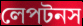
লেপটনস